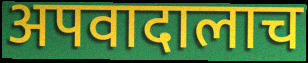
अपवादालाच